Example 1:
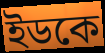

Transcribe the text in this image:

ইডকে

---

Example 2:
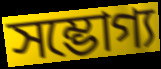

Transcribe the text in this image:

সম্ভোগ্য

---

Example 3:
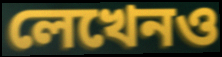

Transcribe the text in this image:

লেখেনও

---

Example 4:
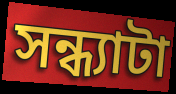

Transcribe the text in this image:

সন্ধ্যাটা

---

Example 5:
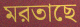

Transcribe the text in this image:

মরতাছে